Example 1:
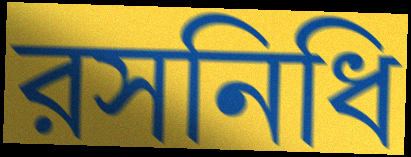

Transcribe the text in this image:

রসনিধি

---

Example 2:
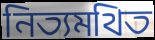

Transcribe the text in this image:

নিত্যমথিত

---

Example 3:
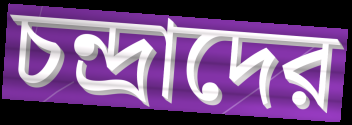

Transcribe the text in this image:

চন্দ্রাদের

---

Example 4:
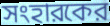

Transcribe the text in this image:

সংহারকের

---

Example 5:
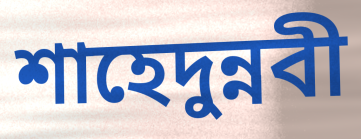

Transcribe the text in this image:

শাহেদুন্নবী